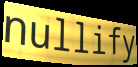
nullify